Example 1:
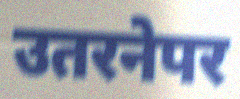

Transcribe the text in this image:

उतरनेपर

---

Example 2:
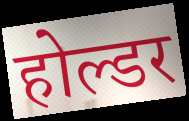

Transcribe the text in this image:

होल्डर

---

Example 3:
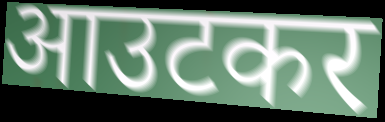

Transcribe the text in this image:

आउटकर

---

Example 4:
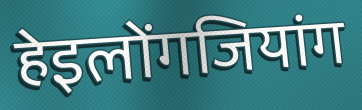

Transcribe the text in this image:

हेइलोंगजियांग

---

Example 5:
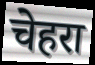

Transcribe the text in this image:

चेहरा